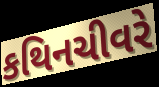
કથિનચીવરે